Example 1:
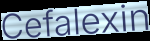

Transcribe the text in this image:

Cefalexin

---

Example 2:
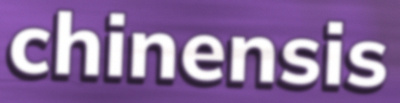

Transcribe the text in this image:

chinensis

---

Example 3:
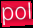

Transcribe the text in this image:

pol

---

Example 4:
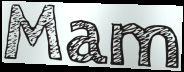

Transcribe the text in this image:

Mam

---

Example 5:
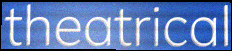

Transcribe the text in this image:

theatrical